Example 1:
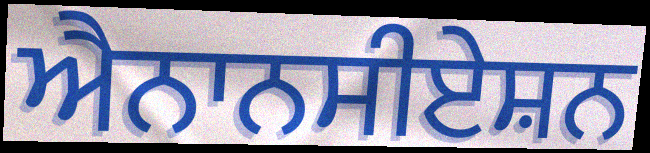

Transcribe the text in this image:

ਐਨਾਨਸੀਏਸ਼ਨ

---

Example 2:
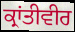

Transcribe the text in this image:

ਕ੍ਰਾਂਤੀਵੀਰ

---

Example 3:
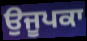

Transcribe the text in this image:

ਉਜੂਪਕਾ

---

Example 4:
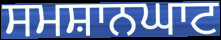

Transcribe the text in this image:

ਸਮਸ਼ਾਨਘਾਟ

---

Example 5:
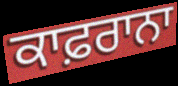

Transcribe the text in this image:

ਕਾਫ਼ਰਾਨਾ